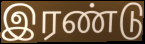
இரண்டு